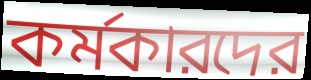
কর্মকারদের